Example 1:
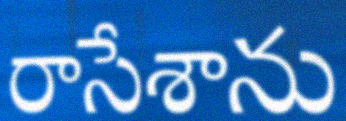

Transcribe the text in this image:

రాసేశాను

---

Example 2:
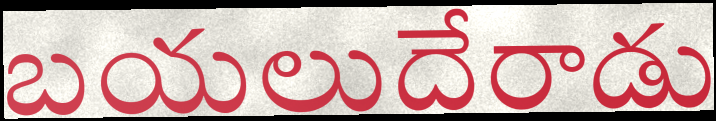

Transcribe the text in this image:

బయలుదేరాడు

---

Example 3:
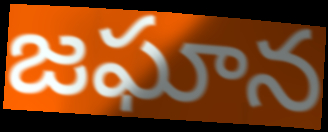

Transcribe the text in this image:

జఘాన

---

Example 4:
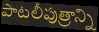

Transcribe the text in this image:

పాటలీపుత్రాన్ని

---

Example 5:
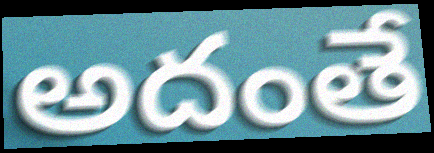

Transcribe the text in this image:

అదంతే